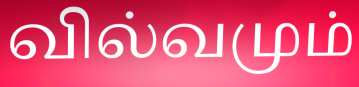
வில்வமும்